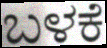
ಬಳಕೆ